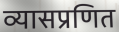
व्यासप्रणित